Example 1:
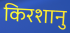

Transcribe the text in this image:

किरशानु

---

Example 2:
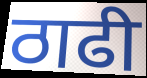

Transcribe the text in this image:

ठाढी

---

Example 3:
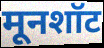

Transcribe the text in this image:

मूनशॉट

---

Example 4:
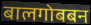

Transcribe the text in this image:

बालगोबबन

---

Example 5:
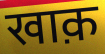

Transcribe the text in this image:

खाक़